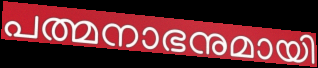
പത്മനാഭനുമായി